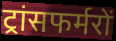
ट्रांसफर्मरों